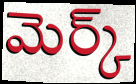
మెర్క్